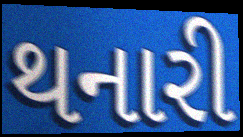
થનારી